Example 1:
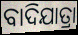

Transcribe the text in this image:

ବାଦିଯାତ୍ରା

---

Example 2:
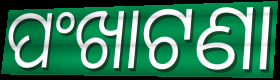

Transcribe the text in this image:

ପଂଖାଟଣା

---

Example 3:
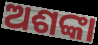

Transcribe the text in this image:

ଅଶଙ୍କା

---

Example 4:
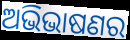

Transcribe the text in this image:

ଅଭିଭାଷଣର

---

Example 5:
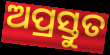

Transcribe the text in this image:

ଅପ୍ରସ୍ତୁତ